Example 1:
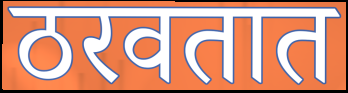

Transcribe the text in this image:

ठरवतात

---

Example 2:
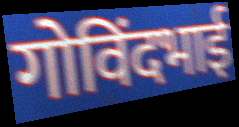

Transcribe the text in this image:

गोविंदभाई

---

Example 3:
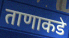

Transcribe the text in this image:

ताणाकडे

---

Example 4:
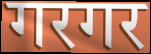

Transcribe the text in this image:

गरगर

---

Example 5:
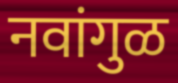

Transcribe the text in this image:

नवांगुळ